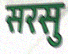
सरसु